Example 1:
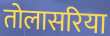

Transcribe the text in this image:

तोलासरिया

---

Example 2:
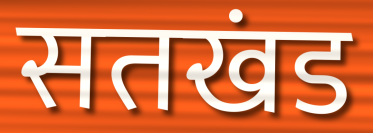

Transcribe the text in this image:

सतखंड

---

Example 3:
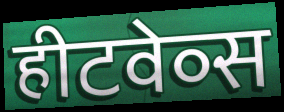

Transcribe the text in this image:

हीटवेव्स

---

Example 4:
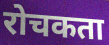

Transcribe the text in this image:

रोचकता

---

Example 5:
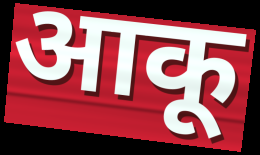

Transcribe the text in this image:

आकू